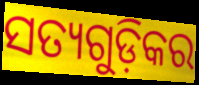
ସତ୍ୟଗୁଡ଼ିକର